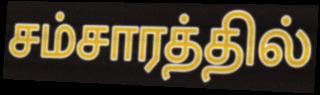
சம்சாரத்தில்